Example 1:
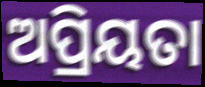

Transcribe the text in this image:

ଅପ୍ରିୟତା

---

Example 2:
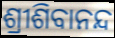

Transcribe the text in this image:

ଶ୍ରୀଶିବାନନ୍ଦ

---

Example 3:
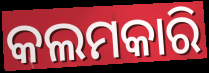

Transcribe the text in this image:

କଲମକାରି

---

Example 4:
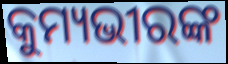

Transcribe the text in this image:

କୁମ୍ୟଭୀରଙ୍କ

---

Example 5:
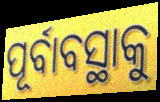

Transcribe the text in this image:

ପୂର୍ବାବସ୍ଥାକୁ